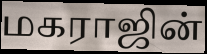
மகராஜின்